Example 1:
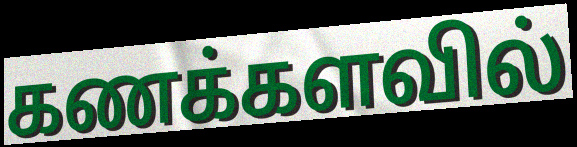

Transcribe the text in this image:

கணக்களவில்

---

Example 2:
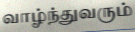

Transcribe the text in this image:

வாழ்ந்துவரும்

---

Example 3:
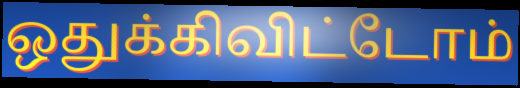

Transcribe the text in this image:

ஒதுக்கிவிட்டோம்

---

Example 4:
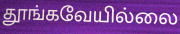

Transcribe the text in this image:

தூங்கவேயில்லை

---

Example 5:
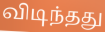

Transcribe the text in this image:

விடிந்தது